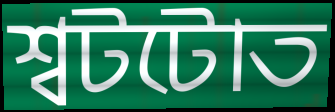
শ্বটটোত